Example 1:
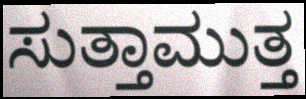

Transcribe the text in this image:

ಸುತ್ತಾಮುತ್ತ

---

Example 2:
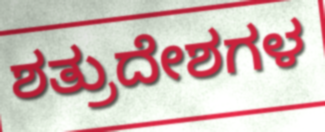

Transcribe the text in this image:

ಶತ್ರುದೇಶಗಳ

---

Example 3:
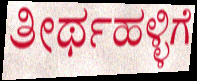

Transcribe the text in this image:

ತೀರ್ಥಹಳ್ಳಿಗೆ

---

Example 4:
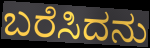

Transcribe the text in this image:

ಬರೆಸಿದನು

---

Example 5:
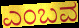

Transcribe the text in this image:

ಎಂಬವ